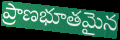
ప్రాణభూతమైన